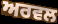
ਅਰਵਲ